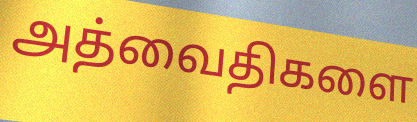
அத்வைதிகளை